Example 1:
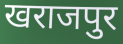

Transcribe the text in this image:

खराजपुर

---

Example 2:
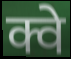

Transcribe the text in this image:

क्वे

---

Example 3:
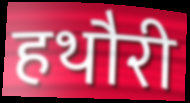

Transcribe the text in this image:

हथौरी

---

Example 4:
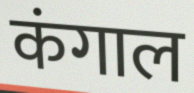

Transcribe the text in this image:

कंगाल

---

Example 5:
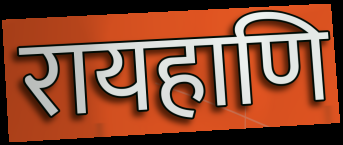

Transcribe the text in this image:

रायहाणि